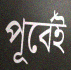
পূৰ্বেই